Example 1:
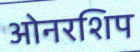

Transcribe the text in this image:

ओनरशिप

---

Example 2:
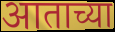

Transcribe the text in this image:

आताच्या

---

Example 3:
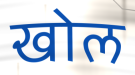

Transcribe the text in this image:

खोल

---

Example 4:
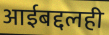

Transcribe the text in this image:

आईबद्दलही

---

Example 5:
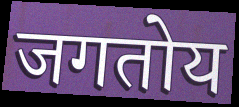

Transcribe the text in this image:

जगतोय